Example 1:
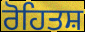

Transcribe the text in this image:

ਰੋਹਿਤਸ਼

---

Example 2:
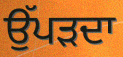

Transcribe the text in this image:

ਉੱਪੜਦਾ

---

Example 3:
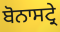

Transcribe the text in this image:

ਬੋਨਾਸਟ੍ਰੇ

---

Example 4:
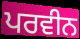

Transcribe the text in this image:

ਪਰਵੀਨ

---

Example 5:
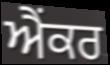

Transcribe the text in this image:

ਐਂਕਰ